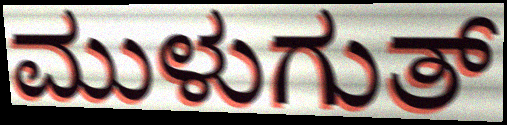
ಮುಳುಗುತ್